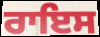
ਰਾਇਸ